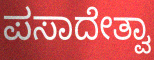
ಪಸಾದೇತ್ವಾ